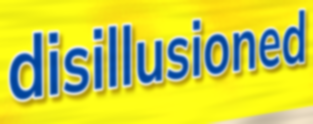
disillusioned